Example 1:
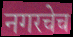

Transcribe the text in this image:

नगरचेच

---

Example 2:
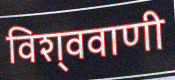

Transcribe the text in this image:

विश्ववाणी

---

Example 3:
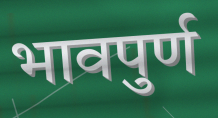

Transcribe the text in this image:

भावपुर्ण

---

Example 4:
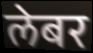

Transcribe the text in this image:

लेबर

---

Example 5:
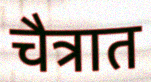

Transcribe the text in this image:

चैत्रात